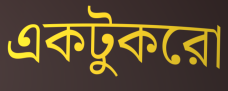
একটুকরো